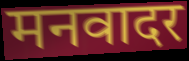
मनवादर